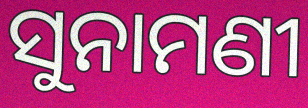
ସୁନାମଣୀ